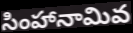
సింహానామివ